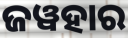
ଜୱହାର